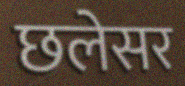
छलेसर